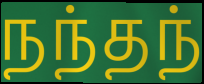
நந்தந்